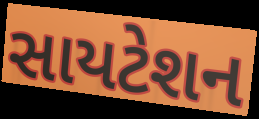
સાયટેશન